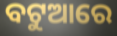
ବଟୁଆରେ